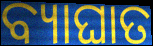
ବ୍ୟାଘାତ